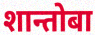
शान्तोबा